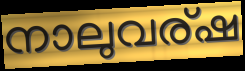
നാലുവര്ഷ